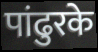
पांढुरके